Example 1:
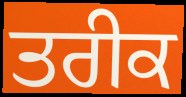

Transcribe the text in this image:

ਤਰੀਕ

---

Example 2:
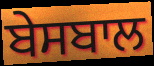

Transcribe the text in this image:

ਬੇਸਬਾਲ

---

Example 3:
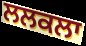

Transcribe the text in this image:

ਲਲਕਲਾ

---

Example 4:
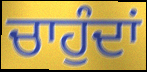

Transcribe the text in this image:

ਚਾਹੁੰਦਾਂ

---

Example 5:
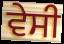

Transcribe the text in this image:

ਵੇਸੀ